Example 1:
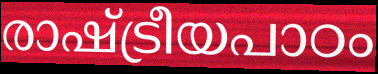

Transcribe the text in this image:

രാഷ്ട്രീയപാഠം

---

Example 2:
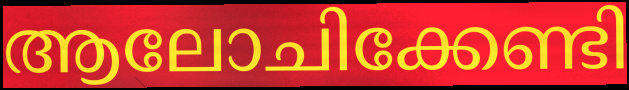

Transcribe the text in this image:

ആലോചിക്കേണ്ടി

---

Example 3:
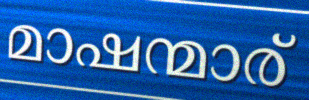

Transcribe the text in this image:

മാഷന്മാര്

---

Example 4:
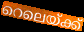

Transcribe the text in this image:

റെലെയ്ക്ക്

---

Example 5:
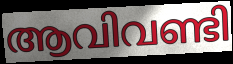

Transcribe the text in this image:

ആവിവണ്ടി